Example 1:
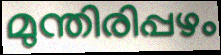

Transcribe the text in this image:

മുന്തിരിപ്പഴം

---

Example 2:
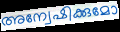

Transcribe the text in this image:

അന്വേഷിക്കുമോ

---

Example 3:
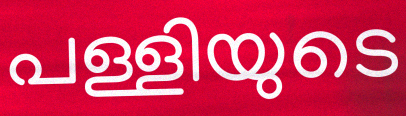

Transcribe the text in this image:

പള്ളിയുടെ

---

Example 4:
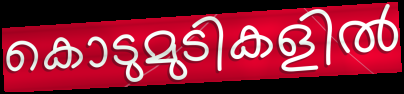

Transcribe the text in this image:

കൊടുമുടികളിൽ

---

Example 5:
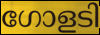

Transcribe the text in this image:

ഗോളടി